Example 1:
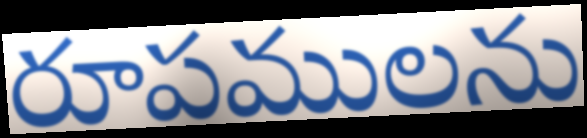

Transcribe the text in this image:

రూపములను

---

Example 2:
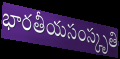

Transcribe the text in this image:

భారతీయసంస్కృతి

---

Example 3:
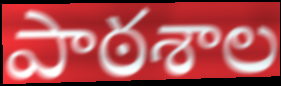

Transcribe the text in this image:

పాఠశాల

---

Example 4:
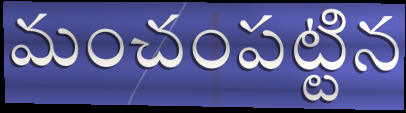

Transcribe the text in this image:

మంచంపట్టిన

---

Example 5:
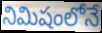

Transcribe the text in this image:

నిమిషంలోనే